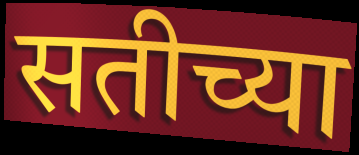
सतीच्या